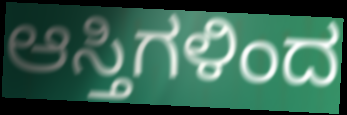
ಆಸ್ತಿಗಳಿಂದ